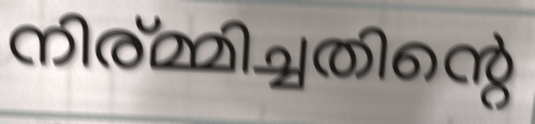
നിര്മ്മിച്ചതിന്റെ